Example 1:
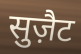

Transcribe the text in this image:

सुज़ैट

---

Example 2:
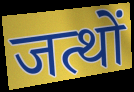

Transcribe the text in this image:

जत्थों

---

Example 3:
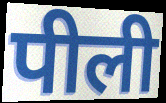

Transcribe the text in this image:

पीली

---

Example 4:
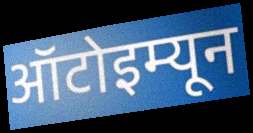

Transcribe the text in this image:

ऑटोइम्यून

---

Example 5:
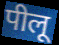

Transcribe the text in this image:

पीलू